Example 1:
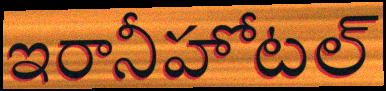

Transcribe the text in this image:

ఇరానీహోటల్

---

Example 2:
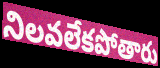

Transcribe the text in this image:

నిలవలేకపోతారు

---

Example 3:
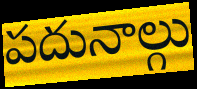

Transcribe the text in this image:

పదునాల్గు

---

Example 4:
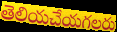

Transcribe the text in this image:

తెలియచేయగలరు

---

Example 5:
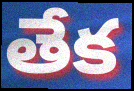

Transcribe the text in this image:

తేక